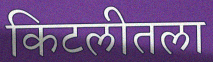
किटलीतला